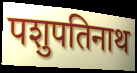
पशुपतिनाथ